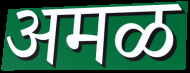
अमळ